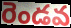
రెండవ